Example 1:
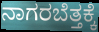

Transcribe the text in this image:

ನಾಗರಬೆತ್ತಕ್ಕೆ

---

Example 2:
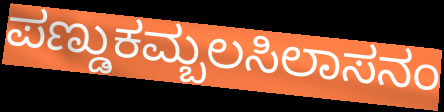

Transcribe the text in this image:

ಪಣ್ಡುಕಮ್ಬಲಸಿಲಾಸನಂ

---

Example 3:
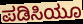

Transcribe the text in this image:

ಪಡಿಸಿಯೂ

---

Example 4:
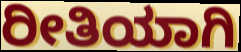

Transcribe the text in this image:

ರೀತಿಯಾಗಿ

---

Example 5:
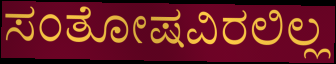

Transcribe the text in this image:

ಸಂತೋಷವಿರಲಿಲ್ಲ